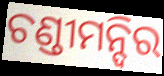
ଚଣ୍ଡୀମନ୍ଦିର